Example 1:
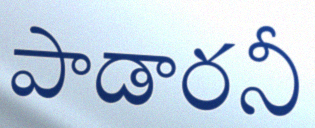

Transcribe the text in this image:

పాడారనీ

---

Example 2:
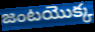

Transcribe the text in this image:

జంటయొక్క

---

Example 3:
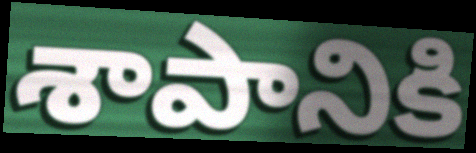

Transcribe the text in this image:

శాపానికి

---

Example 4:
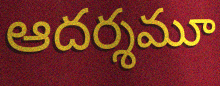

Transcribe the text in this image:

ఆదర్శమూ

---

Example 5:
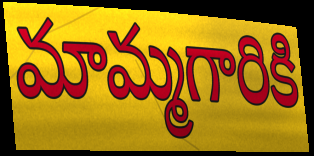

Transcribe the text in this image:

మామ్మగారికి